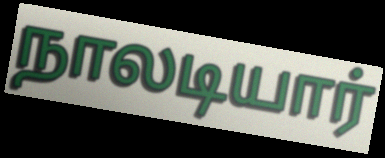
நாலடியார்